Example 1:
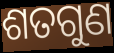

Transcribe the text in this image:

ଶତଗୁଣ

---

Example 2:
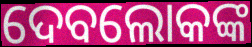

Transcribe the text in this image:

ଦେବଲୋକଙ୍କ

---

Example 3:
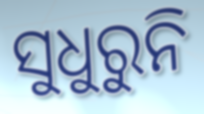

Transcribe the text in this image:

ସୁଧୁରୁନି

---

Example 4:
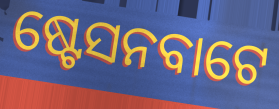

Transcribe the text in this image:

ଷ୍ଟେସନବାଟେ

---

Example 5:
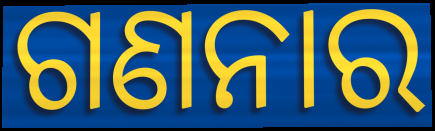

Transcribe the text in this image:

ଗଣନାର